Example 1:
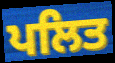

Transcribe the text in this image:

ਪਲਿਤ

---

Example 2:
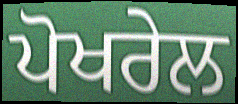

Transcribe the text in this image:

ਪੋਖਰੇਲ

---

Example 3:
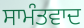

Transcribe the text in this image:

ਸਾਮੰਤਵਾਦ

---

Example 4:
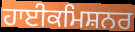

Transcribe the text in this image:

ਹਾਈਕਮਿਸ਼ਨਰ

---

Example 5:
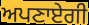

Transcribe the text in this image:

ਅਪਣਾਏਗੀ